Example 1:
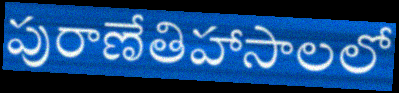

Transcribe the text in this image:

పురాణేతిహాసాలలో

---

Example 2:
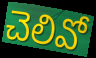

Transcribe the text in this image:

చెలివో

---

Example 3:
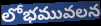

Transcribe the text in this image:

లోభమువలన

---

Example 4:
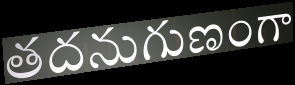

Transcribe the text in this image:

తదనుగుణంగా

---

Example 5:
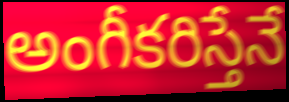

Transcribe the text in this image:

అంగీకరిస్తేనే